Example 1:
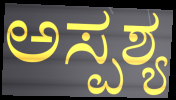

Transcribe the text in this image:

ಅಸ್ಪಶ್ಯ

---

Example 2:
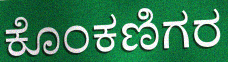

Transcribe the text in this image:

ಕೊಂಕಣಿಗರ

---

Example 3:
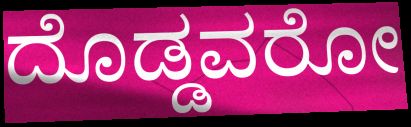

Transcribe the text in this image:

ದೊಡ್ಡವರೋ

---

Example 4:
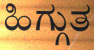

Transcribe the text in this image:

ಹಿಗ್ಗುತ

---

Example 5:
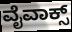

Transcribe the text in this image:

ವೈವಾಕ್ಸ್